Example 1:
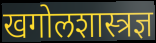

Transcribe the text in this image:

खगोलशास्त्रज्ञ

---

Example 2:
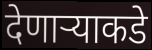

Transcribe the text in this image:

देणाऱ्याकडे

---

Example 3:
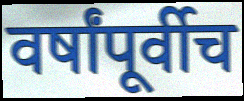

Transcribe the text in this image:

वर्षांपूर्वीच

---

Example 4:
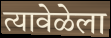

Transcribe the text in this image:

त्यावेळेला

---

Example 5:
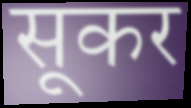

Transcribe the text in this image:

सूकर